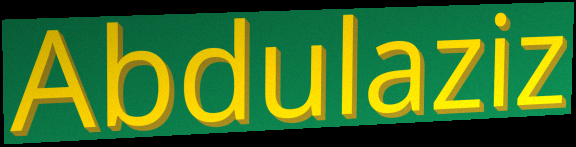
Abdulaziz